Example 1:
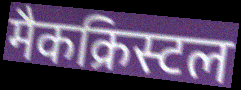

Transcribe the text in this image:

मैकक्रिस्टल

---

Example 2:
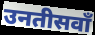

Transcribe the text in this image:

उनतीसवाँ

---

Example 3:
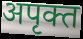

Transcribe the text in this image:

अपृक्त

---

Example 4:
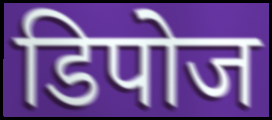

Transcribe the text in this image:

डिपोज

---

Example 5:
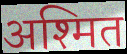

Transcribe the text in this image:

अश्मित